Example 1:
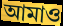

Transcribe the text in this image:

আমাও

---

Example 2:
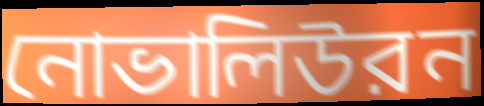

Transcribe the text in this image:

নোভালিউরন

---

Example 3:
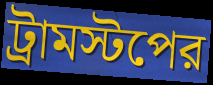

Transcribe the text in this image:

ট্রামস্টপের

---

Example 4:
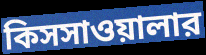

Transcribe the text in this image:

কিসসাওয়ালার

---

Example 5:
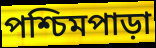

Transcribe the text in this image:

পশ্চিমপাড়া